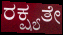
ರಕ್ಷ್ಯತೇ